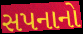
સપનાનો